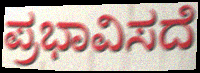
ಪ್ರಭಾವಿಸದೆ